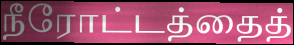
நீரோட்டத்தைத்